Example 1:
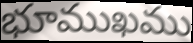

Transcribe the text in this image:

భూముఖము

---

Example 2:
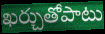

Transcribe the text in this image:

ఖర్చుతోపాటు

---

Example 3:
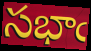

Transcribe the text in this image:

సభాఁ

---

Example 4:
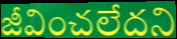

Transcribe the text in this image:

జీవించలేదని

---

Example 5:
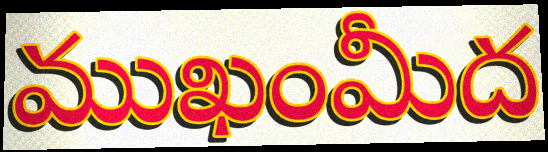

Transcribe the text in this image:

ముఖంమీద